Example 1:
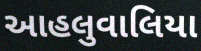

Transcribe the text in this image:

આહલુવાલિયા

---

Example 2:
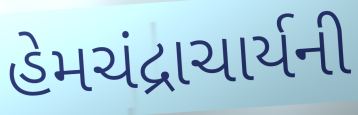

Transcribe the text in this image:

હેમચંદ્રાચાર્યની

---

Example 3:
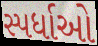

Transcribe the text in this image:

સ્પર્ધાઓ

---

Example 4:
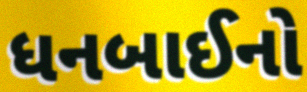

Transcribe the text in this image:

ધનબાઈનો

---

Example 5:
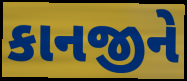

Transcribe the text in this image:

કાનજીને